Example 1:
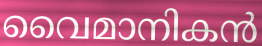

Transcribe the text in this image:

വൈമാനികൻ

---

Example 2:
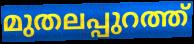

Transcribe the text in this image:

മുതലപ്പുറത്ത്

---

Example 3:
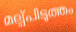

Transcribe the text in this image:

മല്പ്പിടുത്തം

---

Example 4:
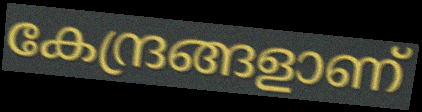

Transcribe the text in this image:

കേന്ദ്രങ്ങളാണ്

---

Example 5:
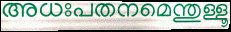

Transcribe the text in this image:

അധഃപതനമെന്തുള്ളൂ